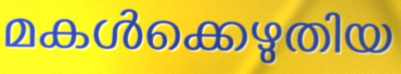
മകൾക്കെഴുതിയ